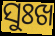
ସୁଃଖ